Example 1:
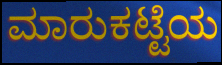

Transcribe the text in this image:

ಮಾರುಕಟ್ಟೆಯ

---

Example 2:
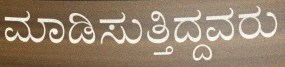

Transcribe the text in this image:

ಮಾಡಿಸುತ್ತಿದ್ದವರು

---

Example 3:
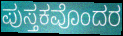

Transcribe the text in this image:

ಪುಸ್ತಕವೊಂದರ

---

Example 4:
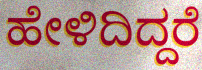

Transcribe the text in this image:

ಹೇಳಿದಿದ್ದರೆ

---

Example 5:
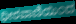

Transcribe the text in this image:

ಧೀರವಾಣಿಯಿಂದ